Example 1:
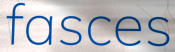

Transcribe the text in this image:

fasces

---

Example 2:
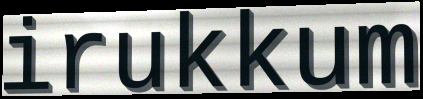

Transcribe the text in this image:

irukkum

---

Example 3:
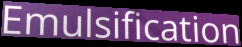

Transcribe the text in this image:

Emulsification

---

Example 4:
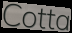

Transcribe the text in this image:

Cotta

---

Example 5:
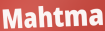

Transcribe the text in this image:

Mahtma